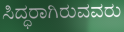
ಸಿದ್ಧರಾಗಿರುವವರು